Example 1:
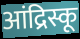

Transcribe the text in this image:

आंद्रिस्कू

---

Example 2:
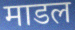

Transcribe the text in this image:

माडल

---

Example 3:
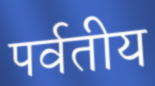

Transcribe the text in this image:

पर्वतीय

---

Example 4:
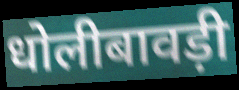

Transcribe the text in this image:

धोलीबावड़ी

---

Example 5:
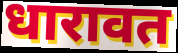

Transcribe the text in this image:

धारावत